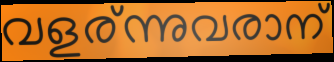
വളര്ന്നുവരാന്